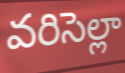
వరిసెల్లా